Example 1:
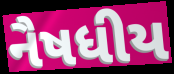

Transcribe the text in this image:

નૈષધીય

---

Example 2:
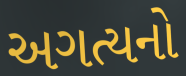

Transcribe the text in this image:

અગત્યનો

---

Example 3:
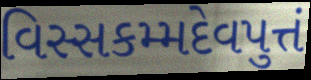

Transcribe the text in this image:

વિસ્સકમ્મદેવપુત્તં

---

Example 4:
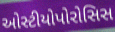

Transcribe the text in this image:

ઓસ્ટીયોપોરોસિસ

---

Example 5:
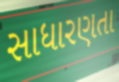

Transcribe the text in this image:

સાધારણતા